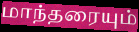
மாந்தரையும்